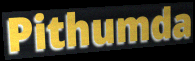
Pithumda